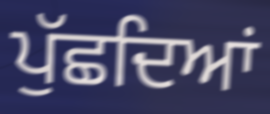
ਪੁੱਛਦਿਆਂ